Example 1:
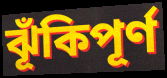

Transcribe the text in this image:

ঝূঁকিপূর্ণ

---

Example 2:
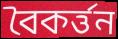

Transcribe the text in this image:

বৈকর্ত্তন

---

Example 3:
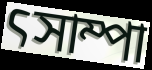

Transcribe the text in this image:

ৎসাম্পা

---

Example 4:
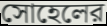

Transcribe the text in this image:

সোহেলের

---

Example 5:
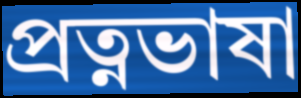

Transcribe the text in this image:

প্রত্নভাষা